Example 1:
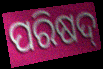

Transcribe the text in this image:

ପରିଷଦ୍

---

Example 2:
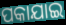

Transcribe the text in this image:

ପକାଯାଇ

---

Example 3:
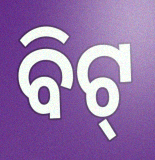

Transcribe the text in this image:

ବିଟ୍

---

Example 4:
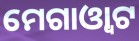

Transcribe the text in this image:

ମେଗାଓ୍ଵାଟ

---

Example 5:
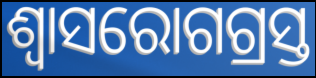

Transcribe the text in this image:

ଶ୍ୱାସରୋଗଗ୍ରସ୍ତ